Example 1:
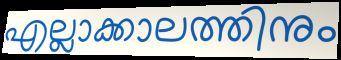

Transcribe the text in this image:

എല്ലാക്കാലത്തിനും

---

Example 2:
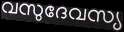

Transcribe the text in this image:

വസുദേവസ്യ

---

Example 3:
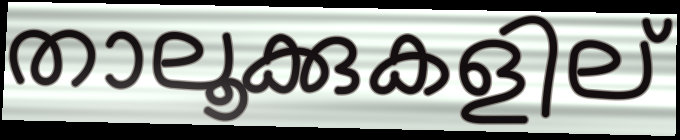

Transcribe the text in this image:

താലൂക്കുകളില്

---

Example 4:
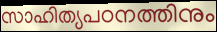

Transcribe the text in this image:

സാഹിത്യപഠനത്തിനും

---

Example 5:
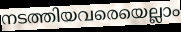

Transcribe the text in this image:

നടത്തിയവരെയെല്ലാം